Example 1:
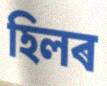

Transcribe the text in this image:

হিলৰ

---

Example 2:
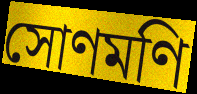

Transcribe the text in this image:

সোণমণি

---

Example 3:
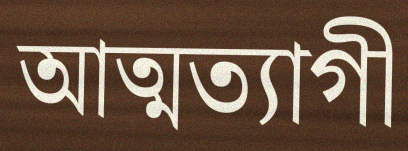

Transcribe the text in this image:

আত্মত্যাগী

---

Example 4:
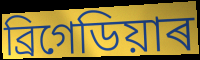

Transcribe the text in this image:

ব্ৰিগেডিয়াৰ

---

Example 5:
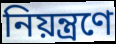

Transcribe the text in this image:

নিয়ন্ত্ৰণে